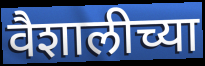
वैशालीच्या